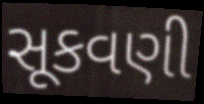
સૂકવણી